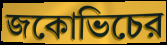
জকোভিচের